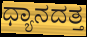
ಧ್ಯಾನದತ್ತ